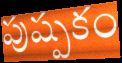
పుష్పకం